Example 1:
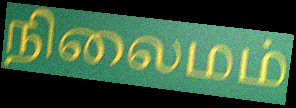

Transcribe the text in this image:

நிலைமம்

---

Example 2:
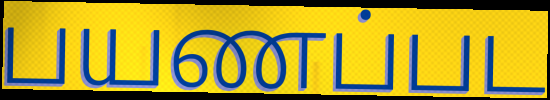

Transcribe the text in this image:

பயணப்பட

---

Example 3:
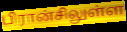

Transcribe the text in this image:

பிரான்சிலுள்ள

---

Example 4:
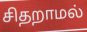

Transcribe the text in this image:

சிதறாமல்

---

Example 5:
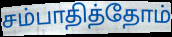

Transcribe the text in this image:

சம்பாதித்தோம்